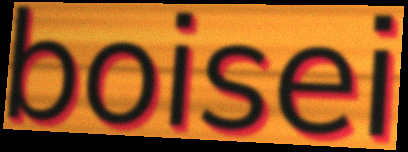
boisei